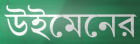
উইমেনের